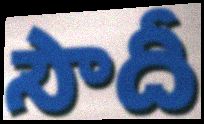
సౌదీ